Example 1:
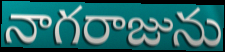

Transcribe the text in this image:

నాగరాజును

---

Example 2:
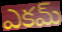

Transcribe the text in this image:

ఎకమ్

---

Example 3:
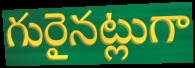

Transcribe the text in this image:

గురైనట్లుగా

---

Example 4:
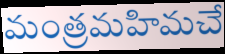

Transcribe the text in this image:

మంత్రమహిమచే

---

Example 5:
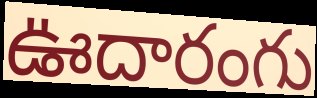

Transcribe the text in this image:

ఊదారంగు